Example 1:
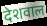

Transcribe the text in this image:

देशवाल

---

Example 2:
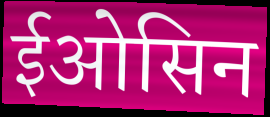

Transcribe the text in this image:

ईओसिन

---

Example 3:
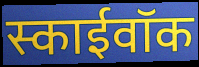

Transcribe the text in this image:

स्काईवॉक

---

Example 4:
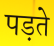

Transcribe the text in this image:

पड़ते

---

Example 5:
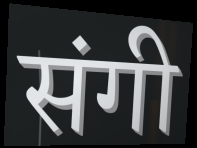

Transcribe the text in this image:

संगी